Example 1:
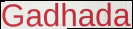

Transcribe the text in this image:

Gadhada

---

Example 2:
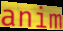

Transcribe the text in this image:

anim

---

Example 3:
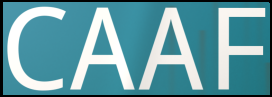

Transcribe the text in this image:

CAAF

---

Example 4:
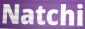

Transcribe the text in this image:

Natchi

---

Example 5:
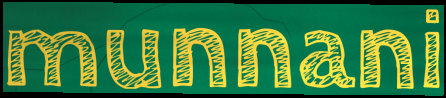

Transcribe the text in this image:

munnani